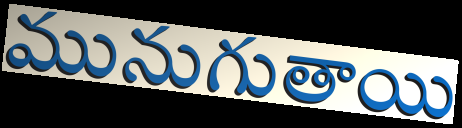
మునుగుతాయి